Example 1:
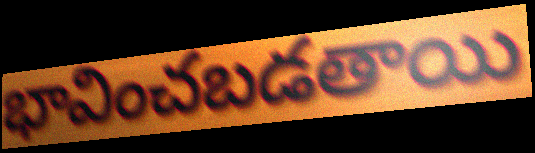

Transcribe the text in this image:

భావించబడతాయి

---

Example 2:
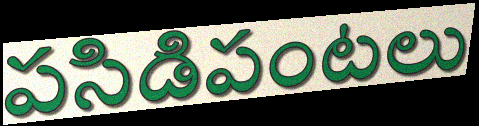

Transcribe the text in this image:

పసిడిపంటలు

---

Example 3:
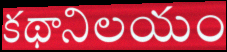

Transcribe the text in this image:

కథానిలయం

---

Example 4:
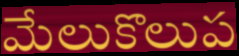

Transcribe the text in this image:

మేలుకొలుప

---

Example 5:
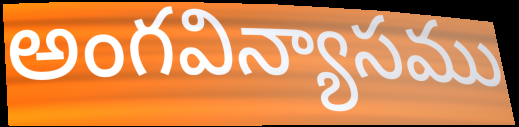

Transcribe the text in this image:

అంగవిన్యాసము